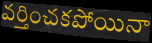
వర్తించకపోయినా